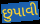
છુપાવી